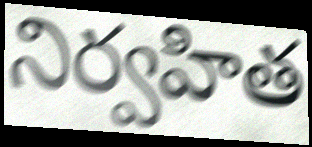
నిర్వహిత